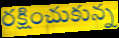
రక్షించుకున్న